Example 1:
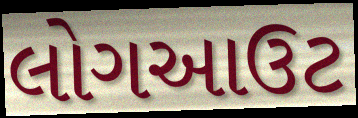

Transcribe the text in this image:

લોગઆઉટ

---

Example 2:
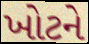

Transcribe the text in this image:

ખોટને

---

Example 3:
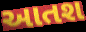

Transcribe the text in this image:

આતશ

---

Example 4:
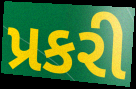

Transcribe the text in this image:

પ્રકરી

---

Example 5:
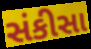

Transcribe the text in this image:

સંકીસા